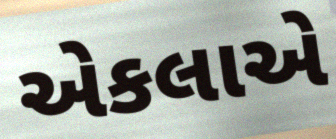
એકલાએ